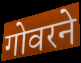
गोवरने